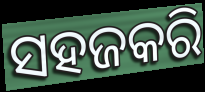
ସହଜକରି